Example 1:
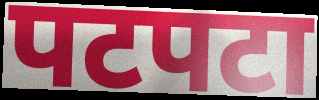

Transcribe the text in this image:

पटपटा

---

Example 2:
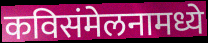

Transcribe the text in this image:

कविसंमेलनामध्ये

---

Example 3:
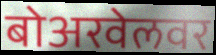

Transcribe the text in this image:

बोअरवेलवर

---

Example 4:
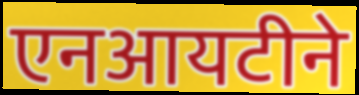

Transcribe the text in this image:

एनआयटीने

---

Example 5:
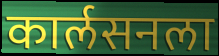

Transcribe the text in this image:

कार्लसनला